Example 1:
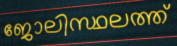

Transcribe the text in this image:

ജോലിസ്ഥലത്ത്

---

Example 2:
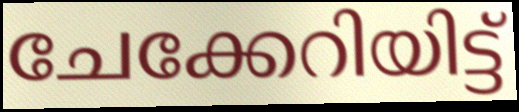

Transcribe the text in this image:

ചേക്കേറിയിട്ട്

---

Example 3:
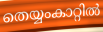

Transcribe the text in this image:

തെയ്യംകാറ്റിൽ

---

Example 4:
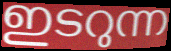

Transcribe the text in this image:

ഇടറുന്ന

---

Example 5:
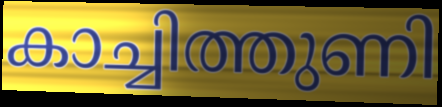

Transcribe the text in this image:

കാച്ചിത്തുണി